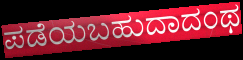
ಪಡೆಯಬಹುದಾದಂಥ